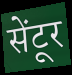
सेंटूर